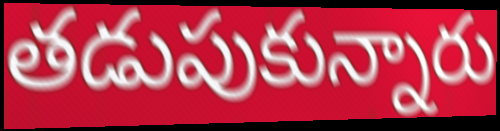
తడుపుకున్నారు